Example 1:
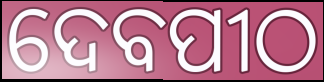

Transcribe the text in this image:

ଦେବପୀଠ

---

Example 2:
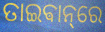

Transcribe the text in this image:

ତାଇଵାନ୍‌ରେ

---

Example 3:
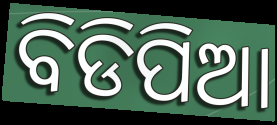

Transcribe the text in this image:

ବିଡିପିଆ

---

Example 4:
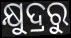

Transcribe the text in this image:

କ୍ଷୁଦ୍ରରୁ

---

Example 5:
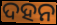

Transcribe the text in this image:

ଦହନ